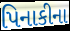
પિનાકીના